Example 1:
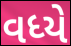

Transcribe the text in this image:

વધ્યે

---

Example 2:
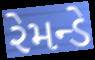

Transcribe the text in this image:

રેમન્ડે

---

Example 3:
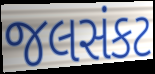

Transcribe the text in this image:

જલસંકટ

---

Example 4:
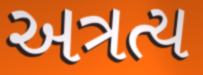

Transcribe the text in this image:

અત્રત્ય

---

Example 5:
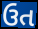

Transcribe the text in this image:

ઉત